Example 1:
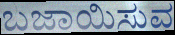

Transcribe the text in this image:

ಬಜಾಯಿಸುವ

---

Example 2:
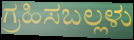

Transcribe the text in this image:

ಗ್ರಹಿಸಬಲ್ಲಳು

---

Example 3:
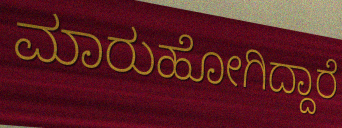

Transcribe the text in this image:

ಮಾರುಹೋಗಿದ್ದಾರೆ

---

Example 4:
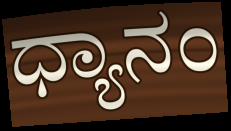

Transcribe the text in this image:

ಧ್ಯಾನಂ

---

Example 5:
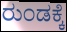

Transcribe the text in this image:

ರುಂಡಕ್ಕೆ